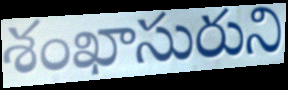
శంఖాసురుని